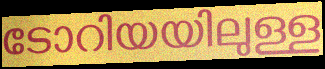
ടോറിയയിലുള്ള